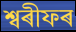
শ্বৰীফৰ